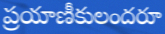
ప్రయాణీకులందరూ